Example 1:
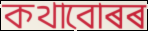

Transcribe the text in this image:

কথাবোৰৰ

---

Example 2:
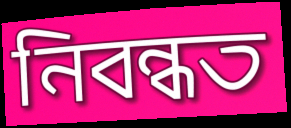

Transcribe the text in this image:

নিবন্ধত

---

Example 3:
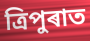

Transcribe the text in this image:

ত্ৰিপুৰাত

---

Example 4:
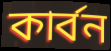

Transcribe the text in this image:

কাৰ্বন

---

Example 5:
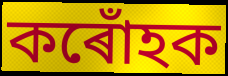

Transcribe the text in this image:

কৰোঁহক